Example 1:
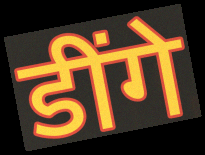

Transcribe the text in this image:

डींगे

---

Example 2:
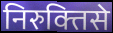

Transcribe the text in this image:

निरुक्तिसे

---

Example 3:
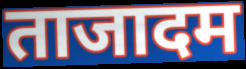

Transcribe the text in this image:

ताजादम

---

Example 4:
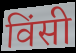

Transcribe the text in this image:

विंसी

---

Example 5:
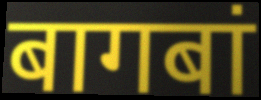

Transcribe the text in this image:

बागबां